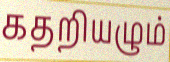
கதறியழும்